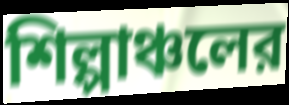
শিল্পাঞ্চলের